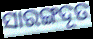
ସାରଙ୍ଗଦୂତ